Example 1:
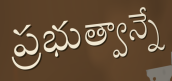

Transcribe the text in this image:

ప్రభుత్వాన్నే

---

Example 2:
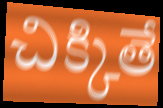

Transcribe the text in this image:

చిక్కితే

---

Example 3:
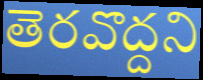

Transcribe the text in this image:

తెరవొద్దని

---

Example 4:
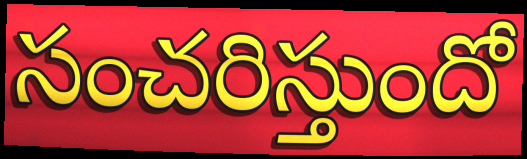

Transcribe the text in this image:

సంచరిస్తుందో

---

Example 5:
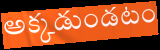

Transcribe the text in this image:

అక్కడుండటం